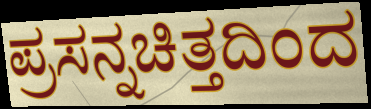
ಪ್ರಸನ್ನಚಿತ್ತದಿಂದ